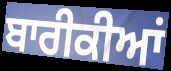
ਬਾਰੀਕੀਆਂ